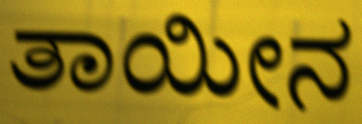
ತಾಯೀನ